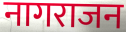
नागराजन